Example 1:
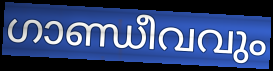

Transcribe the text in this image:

ഗാണ്ഡീവവും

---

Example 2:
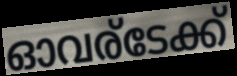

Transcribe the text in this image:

ഓവര്ടേക്ക്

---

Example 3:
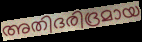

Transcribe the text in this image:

അതിദരിദ്രമായ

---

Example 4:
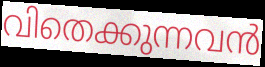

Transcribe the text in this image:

വിതെക്കുന്നവൻ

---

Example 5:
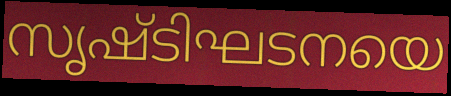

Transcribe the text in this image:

സൃഷ്ടിഘടനയെ